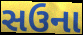
સઉના